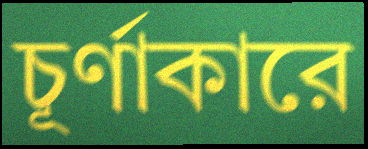
চূর্ণাকারে